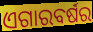
ଏଗାରବର୍ଷର